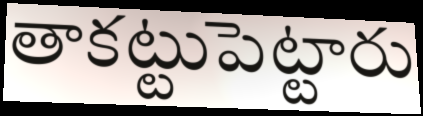
తాకట్టుపెట్టారు